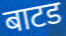
बाटड